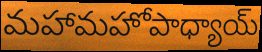
మహామహోపాధ్యాయ్